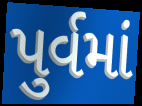
પુર્વમાં